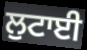
ਲੁਟਾਈ